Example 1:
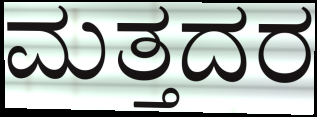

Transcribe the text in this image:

ಮತ್ತದರ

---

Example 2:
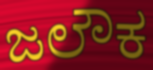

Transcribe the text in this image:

ಜಲೌಕ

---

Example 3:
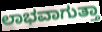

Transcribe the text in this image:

ಲಾಭವಾಗುತ್ತಾ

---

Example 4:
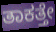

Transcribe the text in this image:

ತಾಕತ್ತೇ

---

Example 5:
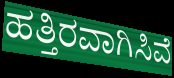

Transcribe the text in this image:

ಹತ್ತಿರವಾಗಿಸಿವೆ